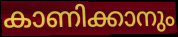
കാണിക്കാനും